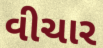
વીચાર